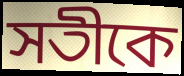
সতীকে